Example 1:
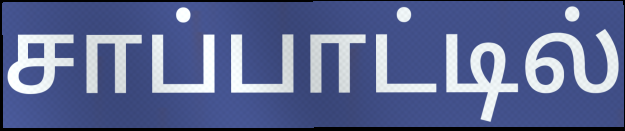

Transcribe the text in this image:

சாப்பாட்டில்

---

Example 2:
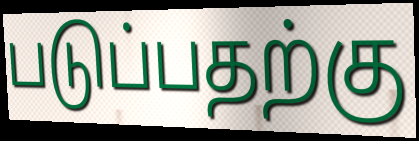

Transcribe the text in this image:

படுப்பதற்கு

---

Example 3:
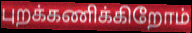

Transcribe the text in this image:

புறக்கணிக்கிறோம்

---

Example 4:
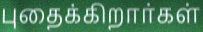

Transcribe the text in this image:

புதைக்கிறார்கள்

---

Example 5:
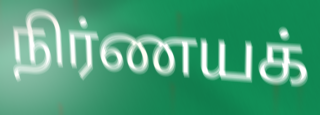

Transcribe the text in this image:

நிர்ணயக்